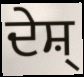
ਦੇਸ਼੍